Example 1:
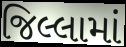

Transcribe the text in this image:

જિલ્લામાં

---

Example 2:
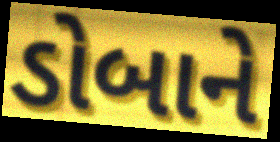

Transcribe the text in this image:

ડોબાને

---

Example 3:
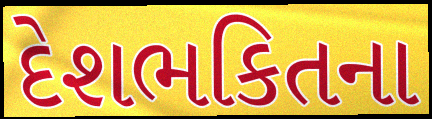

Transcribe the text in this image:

દેશભકિતના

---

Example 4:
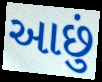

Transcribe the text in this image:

આછું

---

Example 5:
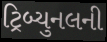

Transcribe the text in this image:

ટ્રિબ્યુનલની